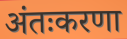
अंतःकरणा